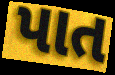
પાત